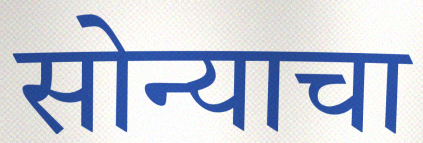
सोन्याचा